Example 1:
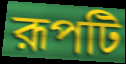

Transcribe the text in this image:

রূপটি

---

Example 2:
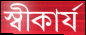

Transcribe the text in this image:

স্বীকার্য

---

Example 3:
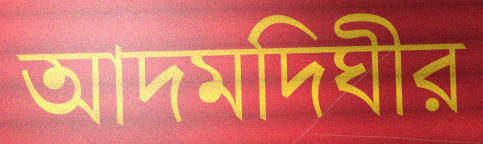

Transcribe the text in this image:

আদমদিঘীর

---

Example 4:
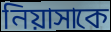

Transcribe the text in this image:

নিয়াসাকে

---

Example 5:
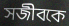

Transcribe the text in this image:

সজীবকে